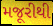
મજૂરીથી